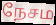
நேசம